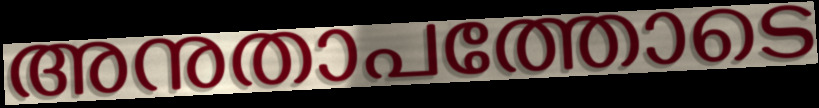
അനുതാപത്തോടെ